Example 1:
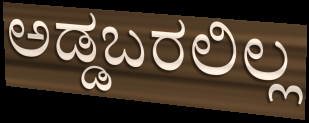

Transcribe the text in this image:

ಅಡ್ಡಬರಲಿಲ್ಲ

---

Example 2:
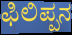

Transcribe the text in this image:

ಫಿಲಿಪ್ಪನ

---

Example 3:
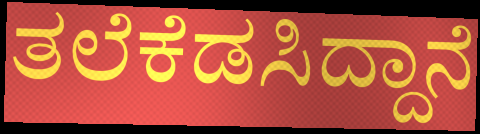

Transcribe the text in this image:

ತಲೆಕೆಡಸಿದ್ದಾನೆ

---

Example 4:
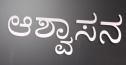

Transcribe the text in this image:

ಆಶ್ವಾಸನ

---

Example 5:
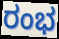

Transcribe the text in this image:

ರಂಭ